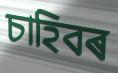
চাহিবৰ